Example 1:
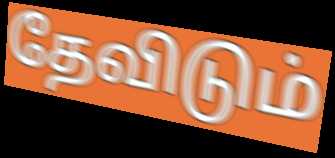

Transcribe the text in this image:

தேவிடும்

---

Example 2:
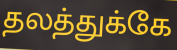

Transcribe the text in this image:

தலத்துக்கே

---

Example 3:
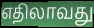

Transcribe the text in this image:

எதிலாவது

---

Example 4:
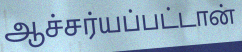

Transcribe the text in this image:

ஆச்சர்யப்பட்டான்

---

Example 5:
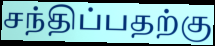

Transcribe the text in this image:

சந்திப்பதற்கு